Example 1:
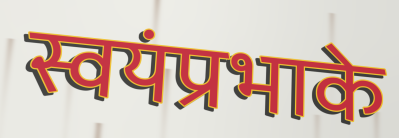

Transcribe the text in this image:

स्वयंप्रभाके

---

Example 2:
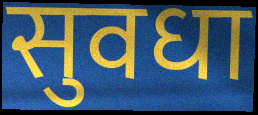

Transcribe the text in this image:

सुवधा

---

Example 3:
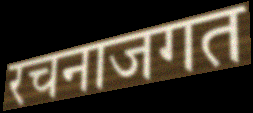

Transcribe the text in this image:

रचनाजगत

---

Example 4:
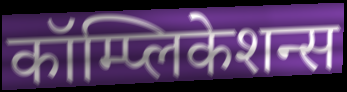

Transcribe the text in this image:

कॉम्प्लिकेशन्स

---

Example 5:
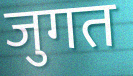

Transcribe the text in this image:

जुगत